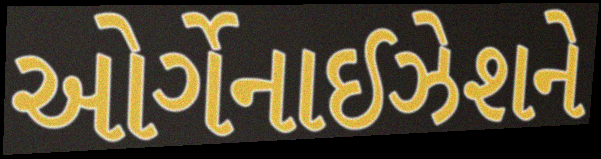
ઓર્ગેનાઈઝેશને